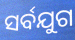
ସର୍ବଯୁଗ